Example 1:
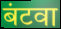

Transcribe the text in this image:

बंटवा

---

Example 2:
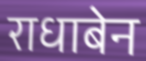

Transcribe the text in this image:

राधाबेन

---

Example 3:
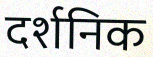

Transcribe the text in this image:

दर्शनिक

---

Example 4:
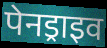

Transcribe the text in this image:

पेनड्राइव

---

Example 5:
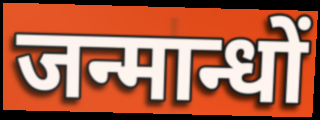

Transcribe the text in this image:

जन्मान्धों